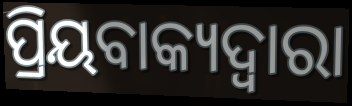
ପ୍ରିୟବାକ୍ୟଦ୍ୱାରା